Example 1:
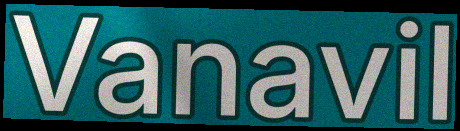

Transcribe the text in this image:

Vanavil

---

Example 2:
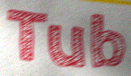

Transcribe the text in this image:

Tub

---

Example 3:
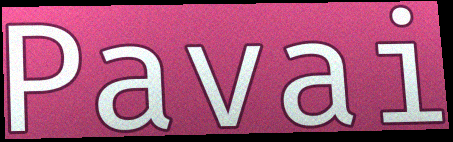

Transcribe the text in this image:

Pavai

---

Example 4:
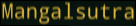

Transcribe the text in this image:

Mangalsutra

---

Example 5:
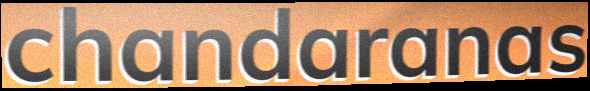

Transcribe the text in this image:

chandaranas